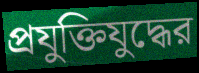
প্রযুক্তিযুদ্ধের